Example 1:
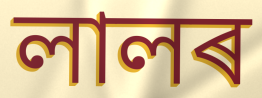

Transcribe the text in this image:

লালৰ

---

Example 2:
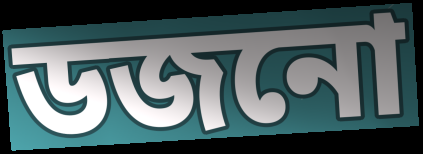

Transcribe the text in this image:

ডজনো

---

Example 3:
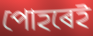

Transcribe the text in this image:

পোহৰেই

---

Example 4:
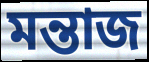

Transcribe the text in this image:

মন্তাজ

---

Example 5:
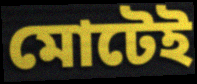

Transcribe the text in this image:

মোটেই